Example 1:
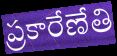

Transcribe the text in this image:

ప్రకారేణేతి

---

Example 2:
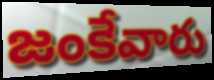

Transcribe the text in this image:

జంకేవారు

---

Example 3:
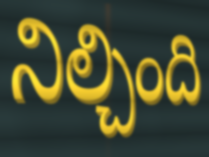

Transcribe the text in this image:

నిల్చింది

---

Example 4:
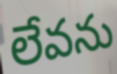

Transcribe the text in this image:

లేవను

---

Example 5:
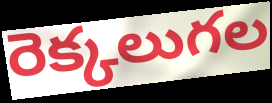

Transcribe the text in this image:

రెక్కలుగల